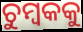
ଚୁମ୍ୱକକୁ